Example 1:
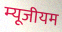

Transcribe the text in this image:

म्यूजीयम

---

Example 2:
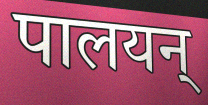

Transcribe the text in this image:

पालयन्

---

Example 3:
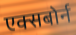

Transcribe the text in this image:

एक्सबोर्न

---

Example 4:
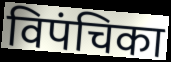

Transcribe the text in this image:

विपंचिका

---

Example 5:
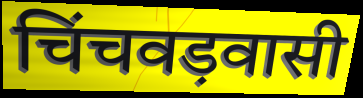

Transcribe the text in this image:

चिंचवड़वासी